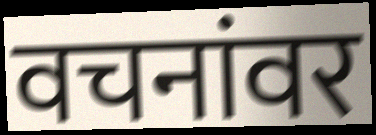
वचनांवर